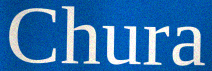
Chura